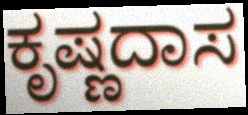
ಕೃಷ್ಣದಾಸ